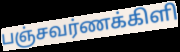
பஞ்சவர்ணக்கிளி